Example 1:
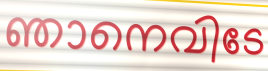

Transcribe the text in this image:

ഞാനെവിടേ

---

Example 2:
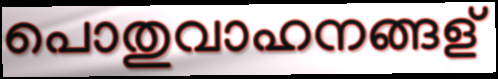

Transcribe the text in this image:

പൊതുവാഹനങ്ങള്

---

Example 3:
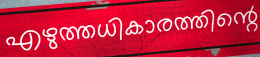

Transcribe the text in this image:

എഴുത്തധികാരത്തിന്റെ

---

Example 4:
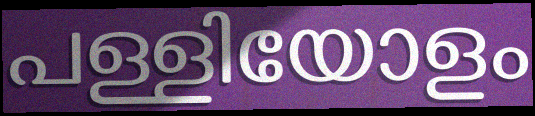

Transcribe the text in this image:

പള്ളിയോളം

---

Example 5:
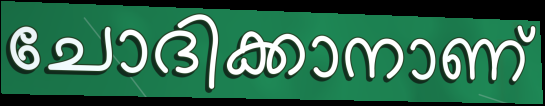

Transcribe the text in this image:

ചോദിക്കാനാണ്